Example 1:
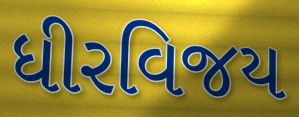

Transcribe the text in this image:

ધીરવિજય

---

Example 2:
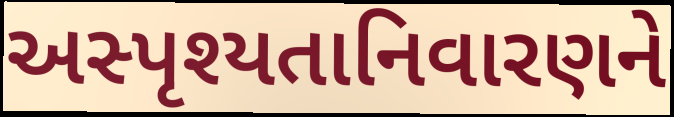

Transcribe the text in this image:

અસ્પૃશ્યતાનિવારણને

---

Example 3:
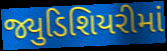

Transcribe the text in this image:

જ્યુડિશિયરીમાં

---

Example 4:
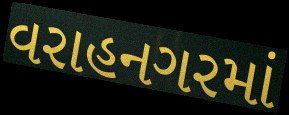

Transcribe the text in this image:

વરાહનગરમાં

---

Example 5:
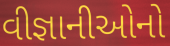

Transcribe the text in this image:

વીજ્ઞાનીઓનો